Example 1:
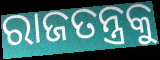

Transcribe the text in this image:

ରାଜତନ୍ତ୍ରକୁ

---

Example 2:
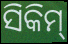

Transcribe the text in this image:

ସିକିମ୍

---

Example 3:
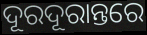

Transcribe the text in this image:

ଦୂରଦୂରାନ୍ତରେ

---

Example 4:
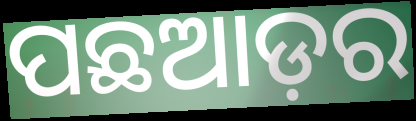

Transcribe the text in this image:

ପଛଆଡ଼ର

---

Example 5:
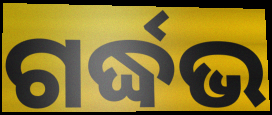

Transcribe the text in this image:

ଗର୍ଦ୍ଧଭ